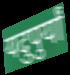
यदुपुर्यां